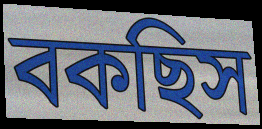
বকছিস